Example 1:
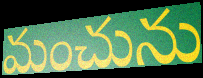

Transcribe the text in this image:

మంచును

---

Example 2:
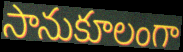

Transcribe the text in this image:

సానుకూలంగా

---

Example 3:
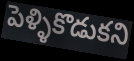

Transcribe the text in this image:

పెళ్ళికొడుకని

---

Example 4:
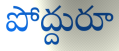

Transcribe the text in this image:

పోద్దురూ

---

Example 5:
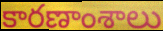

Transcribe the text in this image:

కారణాంశాలు